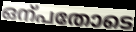
ഒന്പതോടെ